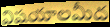
విషయాలమీద